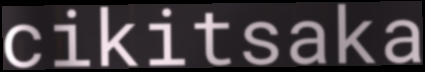
cikitsaka